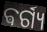
ଵର୍ଗ୍ଯ